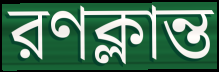
রণক্লান্ত